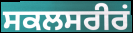
ਸਕਲਸਰੀਰਂ